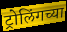
ट्रोलिंगच्या